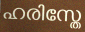
ഹരിസ്തേ